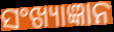
ସଂଖ୍ୟାଜ୍ଞାନ